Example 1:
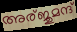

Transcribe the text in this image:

അര്ജുമന്ദ്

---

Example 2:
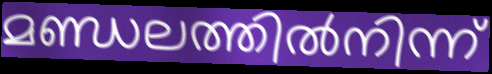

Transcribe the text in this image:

മണ്ഡലത്തിൽനിന്ന്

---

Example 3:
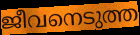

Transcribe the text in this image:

ജീവനെടുത്ത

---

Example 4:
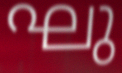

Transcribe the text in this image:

ഘു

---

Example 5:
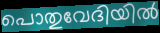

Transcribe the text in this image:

പൊതുവേദിയിൽ